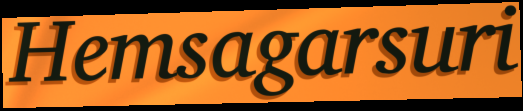
Hemsagarsuri